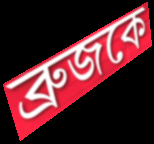
ব্রুজকে